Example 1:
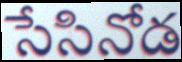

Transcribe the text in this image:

సేసినోడ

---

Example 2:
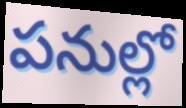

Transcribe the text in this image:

పనుల్లో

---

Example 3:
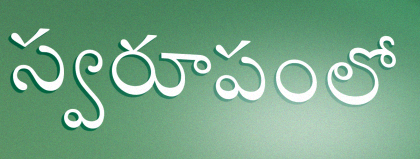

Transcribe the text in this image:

స్వరూపంలో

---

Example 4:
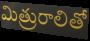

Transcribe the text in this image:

మిత్రురాలితో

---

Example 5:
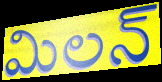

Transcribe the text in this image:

మిలన్